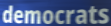
democrats